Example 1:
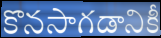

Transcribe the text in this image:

కొనసాగడానికీ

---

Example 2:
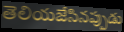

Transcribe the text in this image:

తెలియజేసినప్పుడు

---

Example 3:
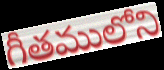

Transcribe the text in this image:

గీతములోని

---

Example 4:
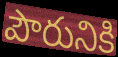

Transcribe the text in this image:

పౌరునికి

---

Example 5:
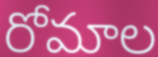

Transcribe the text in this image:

రోమాల